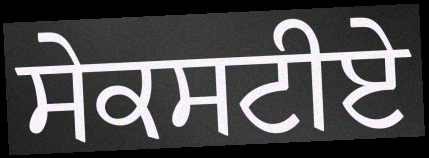
ਸੇਕਸਟੀਏ